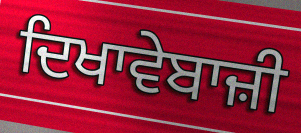
ਦਿਖਾਵੇਬਾਜ਼ੀ